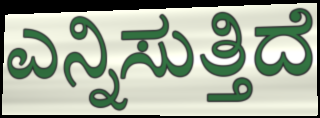
ಎನ್ನಿಸುತ್ತಿದೆ